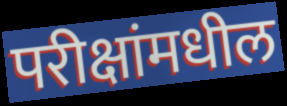
परीक्षांमधील